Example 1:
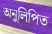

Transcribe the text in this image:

অনুলিপিত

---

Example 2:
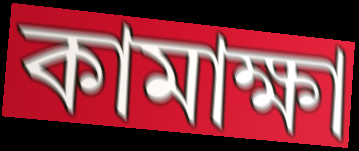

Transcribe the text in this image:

কামাক্ষা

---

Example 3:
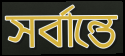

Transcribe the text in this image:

সর্বান্তে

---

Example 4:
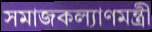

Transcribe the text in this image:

সমাজকল্যাণমন্ত্রী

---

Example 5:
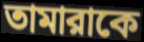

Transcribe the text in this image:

তামারাকে